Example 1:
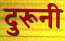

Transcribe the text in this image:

दुरूनी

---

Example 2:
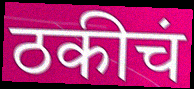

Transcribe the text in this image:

ठकीचं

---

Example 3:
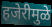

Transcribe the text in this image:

हजेरीमुळे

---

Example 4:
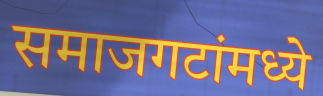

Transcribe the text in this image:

समाजगटांमध्ये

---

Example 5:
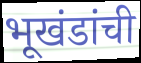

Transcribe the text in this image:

भूखंडांची